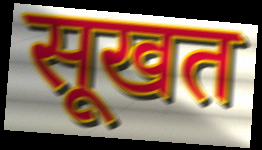
सूखत